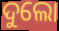
ଦୁଲୋ